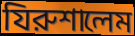
যিরুশালেম